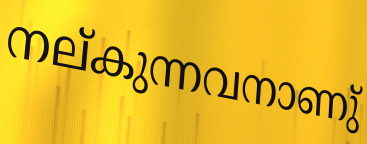
നല്കുന്നവനാണു്